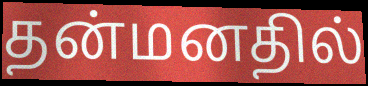
தன்மனதில்